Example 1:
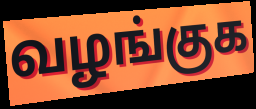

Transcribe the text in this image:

வழங்குக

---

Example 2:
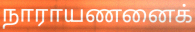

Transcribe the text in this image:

நாராயணனைக்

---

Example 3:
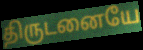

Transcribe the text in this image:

திருடனையே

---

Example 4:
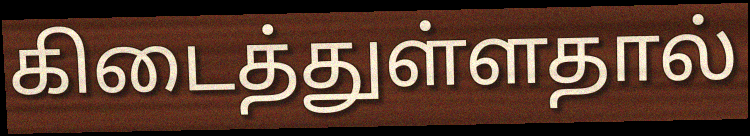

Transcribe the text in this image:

கிடைத்துள்ளதால்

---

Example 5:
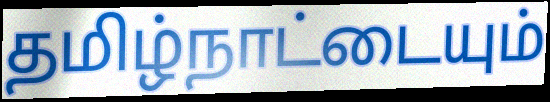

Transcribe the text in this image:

தமிழ்நாட்டையும்